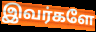
இவர்களே